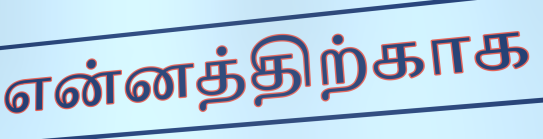
என்னத்திற்காக